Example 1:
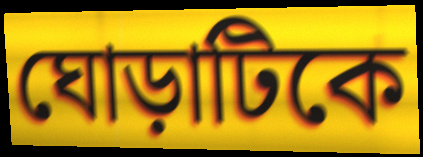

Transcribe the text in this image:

ঘোড়াটিকে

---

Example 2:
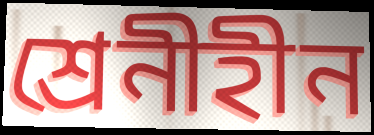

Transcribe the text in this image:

শ্রেনীহীন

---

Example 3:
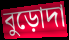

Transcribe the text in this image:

বুড়োদা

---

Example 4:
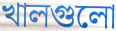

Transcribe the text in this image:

খালগুলো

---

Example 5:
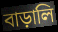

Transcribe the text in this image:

বাড়ালি